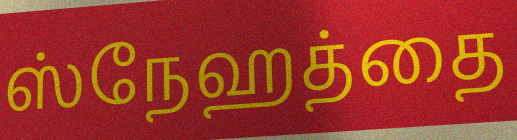
ஸ்நேஹத்தை